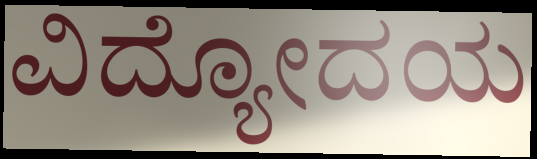
ವಿದ್ಯೋದಯ